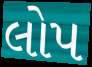
લોપ